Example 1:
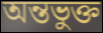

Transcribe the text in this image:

অন্তভুক্ত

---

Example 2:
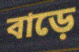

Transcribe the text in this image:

বাড়ে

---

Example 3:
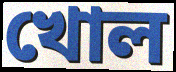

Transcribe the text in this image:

খোল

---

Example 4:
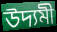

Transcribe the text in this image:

উদ্যমী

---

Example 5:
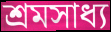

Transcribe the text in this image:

শ্ৰমসাধ্য